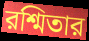
রশ্মিতার